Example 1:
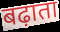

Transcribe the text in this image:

बढ़ाता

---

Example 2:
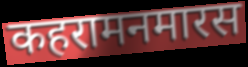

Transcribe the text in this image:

कहरामनमारस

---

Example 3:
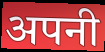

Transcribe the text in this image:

अपनी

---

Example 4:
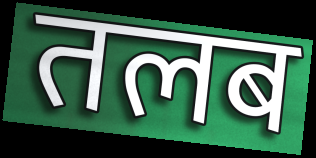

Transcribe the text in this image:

तलब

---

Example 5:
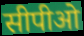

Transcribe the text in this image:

सीपीओ